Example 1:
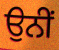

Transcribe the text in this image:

ਉਨੀਂ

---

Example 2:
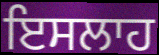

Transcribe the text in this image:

ਇਸਲਾਹ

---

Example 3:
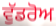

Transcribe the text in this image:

ਵੁੱਡਰੋਅ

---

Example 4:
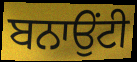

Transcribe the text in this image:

ਬਨਾਉਂਟੀ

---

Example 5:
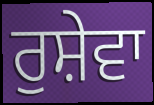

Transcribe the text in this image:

ਰੁਸ਼ੇਵਾ